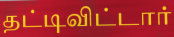
தட்டிவிட்டார்